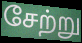
சேற்று